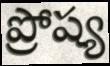
ప్రోష్య